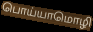
பொய்யாமொழி